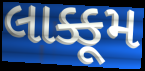
લાક્કૂમ